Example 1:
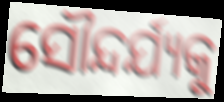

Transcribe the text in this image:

ସୌନ୍ଦର୍ଯ୍ୟକୁ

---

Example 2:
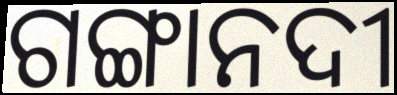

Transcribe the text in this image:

ଗଙ୍ଗାନଦୀ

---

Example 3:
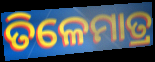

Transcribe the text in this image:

ତିଳେମାତ୍ର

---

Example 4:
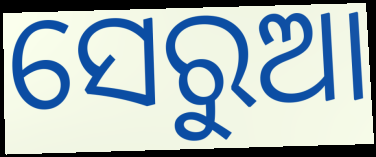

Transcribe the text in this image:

ସେରୁଆ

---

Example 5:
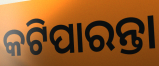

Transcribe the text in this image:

କଟିପାରନ୍ତା